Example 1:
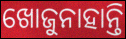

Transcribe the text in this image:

ଖୋଜୁନାହାନ୍ତି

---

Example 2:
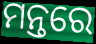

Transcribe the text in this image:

ମନ୍ତରେ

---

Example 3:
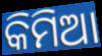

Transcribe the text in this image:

କିମିଆ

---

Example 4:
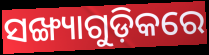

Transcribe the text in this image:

ସଙ୍ଖ୍ୟାଗୁଡ଼ିକରେ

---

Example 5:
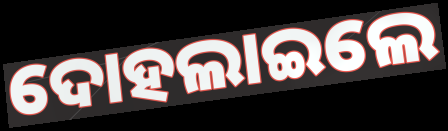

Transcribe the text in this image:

ଦୋହଲାଇଲେ